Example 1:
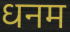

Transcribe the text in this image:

धनम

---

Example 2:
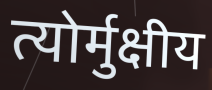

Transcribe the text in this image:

त्योर्मुक्षीय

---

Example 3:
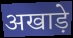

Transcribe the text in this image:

अखाड़े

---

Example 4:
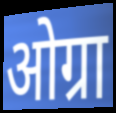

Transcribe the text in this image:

ओग्रा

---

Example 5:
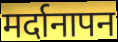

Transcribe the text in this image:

मर्दानापन